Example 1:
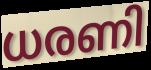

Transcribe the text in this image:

ധരണി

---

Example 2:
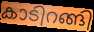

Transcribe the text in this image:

കാടിറങ്ങി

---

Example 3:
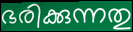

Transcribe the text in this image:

ഭരിക്കുന്നതു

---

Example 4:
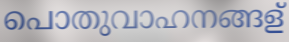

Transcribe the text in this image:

പൊതുവാഹനങ്ങള്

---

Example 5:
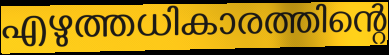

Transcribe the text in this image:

എഴുത്തധികാരത്തിന്റെ